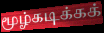
மூழ்கடிக்கக்